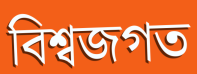
বিশ্বজগত